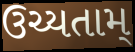
ઉચ્યતામ્